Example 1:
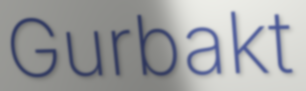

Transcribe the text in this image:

Gurbakt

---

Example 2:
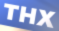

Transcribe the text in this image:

THX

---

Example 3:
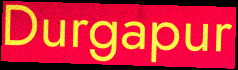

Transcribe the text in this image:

Durgapur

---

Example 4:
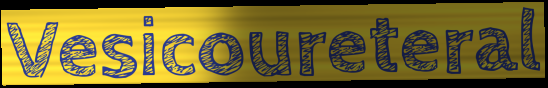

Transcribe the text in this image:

Vesicoureteral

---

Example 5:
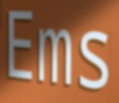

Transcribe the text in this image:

Ems